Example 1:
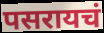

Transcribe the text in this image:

पसरायचं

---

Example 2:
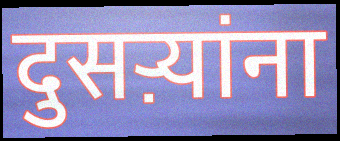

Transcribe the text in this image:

दुसऱ्‍यांना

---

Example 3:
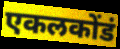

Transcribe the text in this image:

एकलकोंडं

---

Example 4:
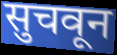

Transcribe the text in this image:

सुचवून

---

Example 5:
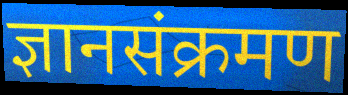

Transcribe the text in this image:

ज्ञानसंक्रमण